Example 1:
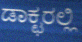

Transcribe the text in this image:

ಡಾಕ್ಟರಲ್ಲಿ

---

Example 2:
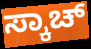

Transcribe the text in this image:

ಸ್ಕಾಚ್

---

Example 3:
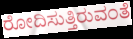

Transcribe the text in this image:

ರೋದಿಸುತ್ತಿರುವಂತೆ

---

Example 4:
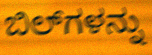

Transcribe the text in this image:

ಬಿಲ್‌ಗಳನ್ನು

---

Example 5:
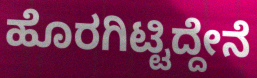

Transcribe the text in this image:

ಹೊರಗಿಟ್ಟಿದ್ದೇನೆ